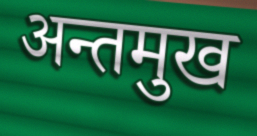
अन्तमुख